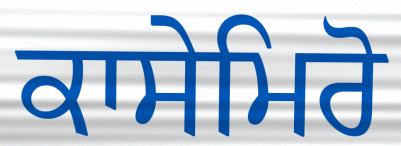
ਕਾਸੇਮਿਰੋ